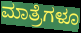
ಮಾತ್ರೆಗಳೂ